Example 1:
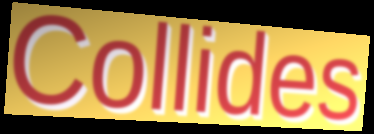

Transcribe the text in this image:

Collides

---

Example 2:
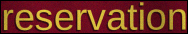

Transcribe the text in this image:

reservation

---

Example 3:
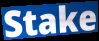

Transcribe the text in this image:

Stake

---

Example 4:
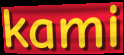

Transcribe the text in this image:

kami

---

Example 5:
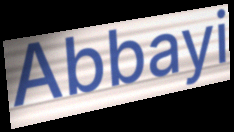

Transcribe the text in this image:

Abbayi